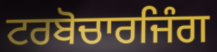
ਟਰਬੋਚਾਰਜਿੰਗ